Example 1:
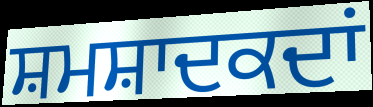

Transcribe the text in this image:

ਸ਼ਮਸ਼ਾਦਕਦਾਂ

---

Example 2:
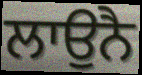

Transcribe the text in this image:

ਲਾਉਨੈ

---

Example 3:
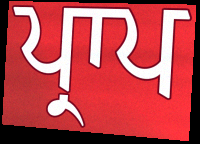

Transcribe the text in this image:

ਪ੍ਰਾਪ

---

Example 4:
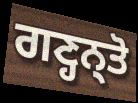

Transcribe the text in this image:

ਗਣ੍ਹਨ੍ਤੋ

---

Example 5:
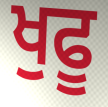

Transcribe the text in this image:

ਖੁਫੂ